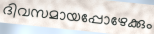
ദിവസമായപ്പോഴേക്കും